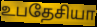
உபதேசியா